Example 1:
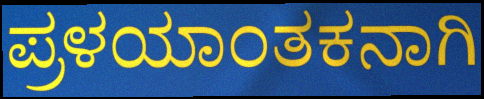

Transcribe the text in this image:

ಪ್ರಳಯಾಂತಕನಾಗಿ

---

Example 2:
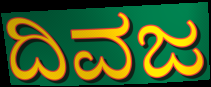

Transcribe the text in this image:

ದಿವಜ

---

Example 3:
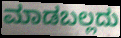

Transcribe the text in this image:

ಮಾಡಬಲ್ಲದು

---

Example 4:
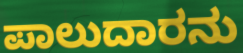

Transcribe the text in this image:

ಪಾಲುದಾರನು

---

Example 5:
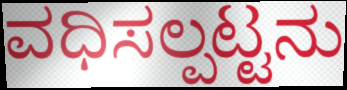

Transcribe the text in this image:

ವಧಿಸಲ್ಪಟ್ಟನು